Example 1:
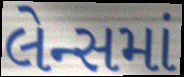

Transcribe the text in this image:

લેન્સમાં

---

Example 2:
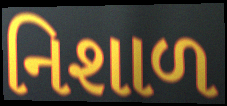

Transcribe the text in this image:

નિશાળ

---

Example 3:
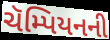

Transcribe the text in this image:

ચૅમ્પિયનની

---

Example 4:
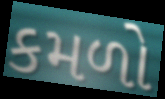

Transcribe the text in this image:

કમળો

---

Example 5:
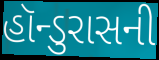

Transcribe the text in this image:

હૉન્ડુરાસની